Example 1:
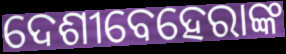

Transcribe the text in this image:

ଦେଶୀବେହେରାଙ୍କ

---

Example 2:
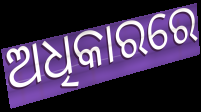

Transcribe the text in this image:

ଅଧିକାରରେ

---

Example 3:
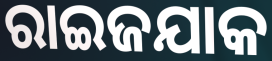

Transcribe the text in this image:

ରାଇଜଯାକ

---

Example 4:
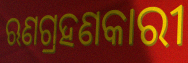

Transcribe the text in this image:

ଋଣଗ୍ରହଣକାରୀ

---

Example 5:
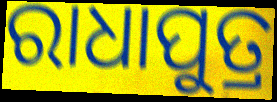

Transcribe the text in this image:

ରାଧାପୁତ୍ର